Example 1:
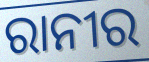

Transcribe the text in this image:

ରାନୀର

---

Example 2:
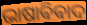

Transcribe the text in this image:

ଭାଷାଵିଵାଦ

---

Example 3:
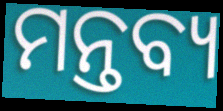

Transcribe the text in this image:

ମନ୍ତବ୍ୟ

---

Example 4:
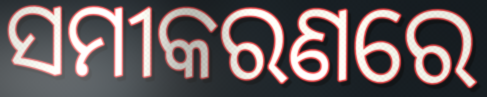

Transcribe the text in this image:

ସମୀକରଣରେ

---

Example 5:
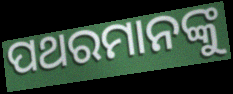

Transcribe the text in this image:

ପଥରମାନଙ୍କୁ